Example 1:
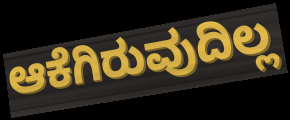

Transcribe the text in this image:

ಆಕೆಗಿರುವುದಿಲ್ಲ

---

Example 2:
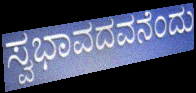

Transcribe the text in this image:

ಸ್ವಭಾವದವನೆಂದು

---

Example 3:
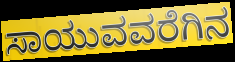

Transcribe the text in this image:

ಸಾಯುವವರೆಗಿನ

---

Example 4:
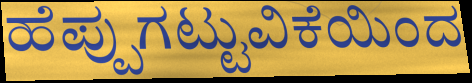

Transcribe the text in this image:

ಹೆಪ್ಪುಗಟ್ಟುವಿಕೆಯಿಂದ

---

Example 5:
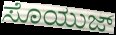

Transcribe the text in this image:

ಸೊಯುಜ್